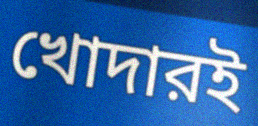
খোদারই